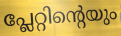
പ്ലേറ്റിന്റെയും